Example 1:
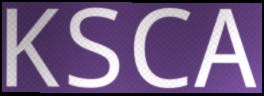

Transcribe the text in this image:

KSCA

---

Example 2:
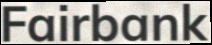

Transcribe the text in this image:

Fairbank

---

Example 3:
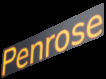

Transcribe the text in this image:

Penrose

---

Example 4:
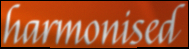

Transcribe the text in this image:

harmonised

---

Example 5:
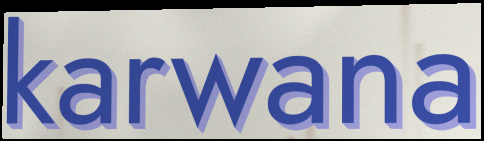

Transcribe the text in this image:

karwana